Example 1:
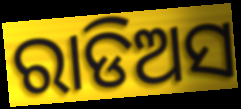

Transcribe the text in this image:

ରାଡିଅସ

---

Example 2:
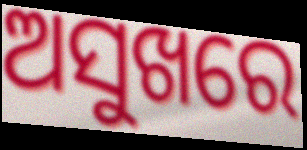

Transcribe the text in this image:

ଅସୁଖରେ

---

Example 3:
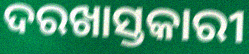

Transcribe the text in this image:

ଦରଖାସ୍ତକାରୀ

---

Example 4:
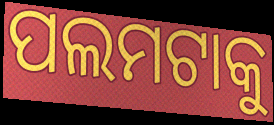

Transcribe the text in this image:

ପଲମଟାକୁ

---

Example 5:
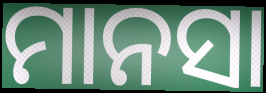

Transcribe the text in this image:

ମାନସା